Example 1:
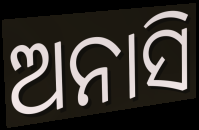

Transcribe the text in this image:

ଅନାସି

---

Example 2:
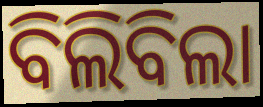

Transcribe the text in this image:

ବିଲିବିଲା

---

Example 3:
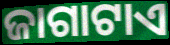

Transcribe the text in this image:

ଜାଗାଟାଏ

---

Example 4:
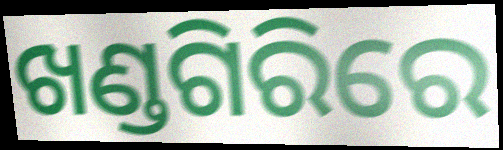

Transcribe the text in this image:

ଖଣ୍ଡଗିରିରେ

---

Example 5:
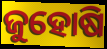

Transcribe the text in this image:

ଜୁହୋଷି